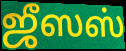
ஜீஸஸ்